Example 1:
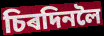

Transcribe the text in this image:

চিৰদিনলৈ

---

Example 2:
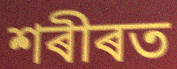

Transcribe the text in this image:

শৰীৰত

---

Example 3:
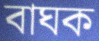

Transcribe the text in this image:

বাঘক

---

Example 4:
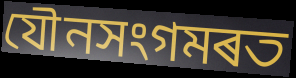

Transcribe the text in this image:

যৌনসংগমৰত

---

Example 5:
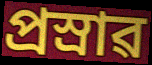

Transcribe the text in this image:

প্ৰস্ৰাৱ